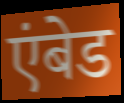
एंबेड